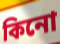
কিনো